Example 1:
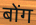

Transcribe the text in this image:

बोंग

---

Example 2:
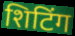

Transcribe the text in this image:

शिटिंग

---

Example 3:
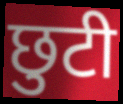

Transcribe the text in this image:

छुटी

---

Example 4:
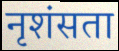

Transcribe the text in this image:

नृशंसता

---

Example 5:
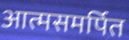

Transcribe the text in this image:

आत्मसमर्पित